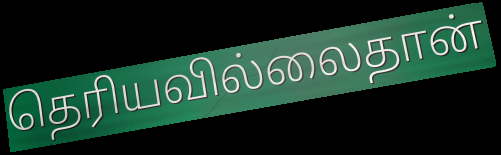
தெரியவில்லைதான்